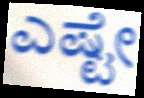
ಎಷ್ಟೇ